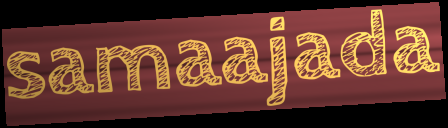
samaajada